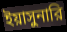
ইয়াসুনারি